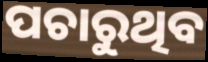
ପଚାରୁଥିବ